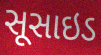
સૂસાઇડ